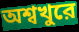
অশ্বখুরে